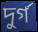
দুৰ্গ